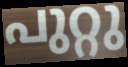
പുറ്റു